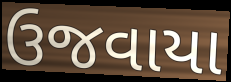
ઉજવાયા